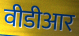
वीडीआर